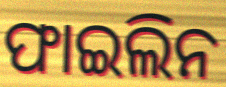
ଫାଇଲିନ